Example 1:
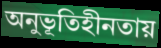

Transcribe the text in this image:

অনুভূতিহীনতায়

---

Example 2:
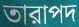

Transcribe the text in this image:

তারাপদ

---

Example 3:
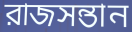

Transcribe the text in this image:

রাজসন্তান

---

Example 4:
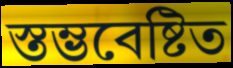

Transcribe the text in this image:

স্তম্ভবেষ্টিত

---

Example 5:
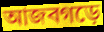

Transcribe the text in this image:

আজবগড়ে